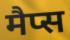
मैप्स